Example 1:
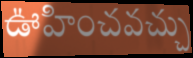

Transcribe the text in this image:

ఊహించవచ్చు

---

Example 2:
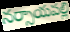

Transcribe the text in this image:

నర్సాయపల్లి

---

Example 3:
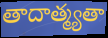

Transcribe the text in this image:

తాదాత్మ్యతా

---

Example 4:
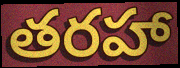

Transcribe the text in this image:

తరహా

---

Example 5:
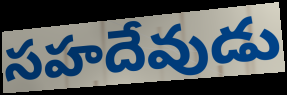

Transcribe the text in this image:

సహదేవుడు